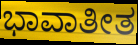
ಭಾವಾತೀತ